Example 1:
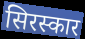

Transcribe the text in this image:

सिरस्कार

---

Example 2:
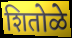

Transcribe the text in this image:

शितोळे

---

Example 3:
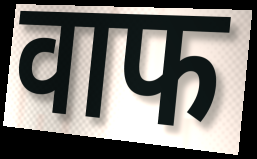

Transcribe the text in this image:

वाफ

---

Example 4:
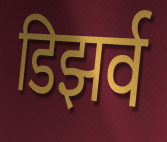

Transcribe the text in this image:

डिझर्व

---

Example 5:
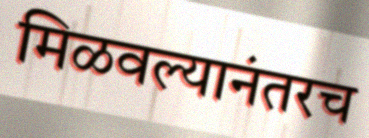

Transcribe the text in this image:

मिळवल्यानंतरच